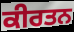
ਕੀਰਤਨ